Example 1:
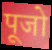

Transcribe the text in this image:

पूजो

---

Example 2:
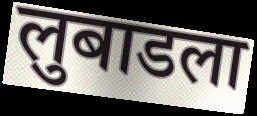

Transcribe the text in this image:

लुबाडला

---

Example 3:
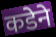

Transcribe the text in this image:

कडेने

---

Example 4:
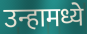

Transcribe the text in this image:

उन्हामध्ये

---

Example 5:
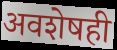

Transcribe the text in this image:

अवशेषही